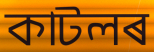
কাটলৰ